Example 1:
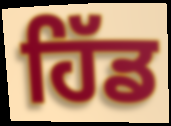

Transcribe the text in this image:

ਹਿੱਡ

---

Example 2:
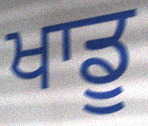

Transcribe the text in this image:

ਖਾਡੂ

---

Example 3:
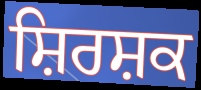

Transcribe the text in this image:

ਸ਼ਿਰਸ਼ਕ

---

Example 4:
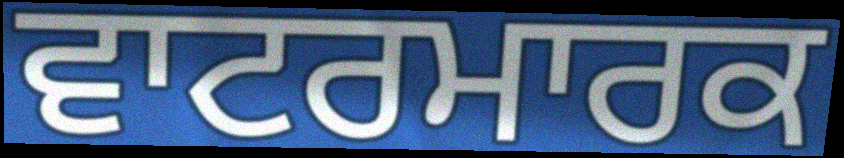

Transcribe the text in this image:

ਵਾਟਰਮਾਰਕ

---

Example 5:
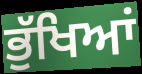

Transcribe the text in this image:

ਭੁੱਖਿਆਂ